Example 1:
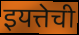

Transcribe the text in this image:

इयत्तेची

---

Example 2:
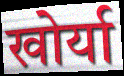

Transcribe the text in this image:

खोर्या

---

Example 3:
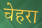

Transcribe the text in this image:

चेहरा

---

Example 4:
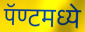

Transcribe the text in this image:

पॅण्टमध्ये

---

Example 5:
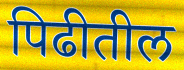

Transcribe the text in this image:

पिढीतील